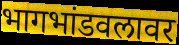
भागभांडवलावर